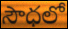
సౌధలో